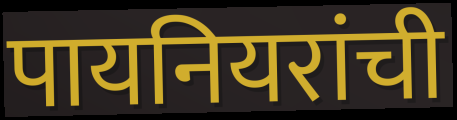
पायनियरांची